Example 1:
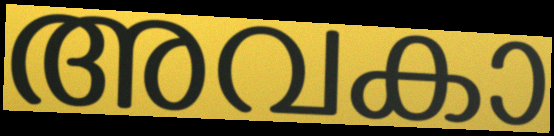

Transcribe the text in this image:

അവകാ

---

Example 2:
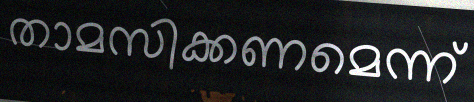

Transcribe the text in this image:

താമസിക്കണമെന്ന്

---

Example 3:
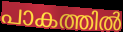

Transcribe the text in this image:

പാകത്തിൽ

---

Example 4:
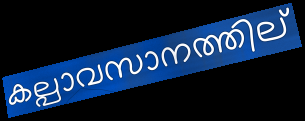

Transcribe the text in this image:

കല്പാവസാനത്തില്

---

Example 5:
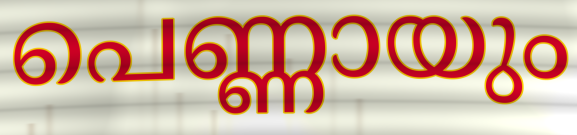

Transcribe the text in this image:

പെണ്ണായും